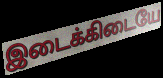
இடைக்கிடையே